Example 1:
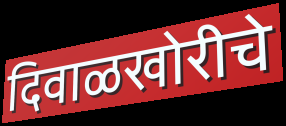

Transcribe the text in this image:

दिवाळखोरीचे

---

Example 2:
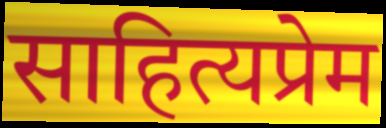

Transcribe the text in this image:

साहित्यप्रेम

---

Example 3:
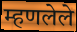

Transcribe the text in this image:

म्हणलेले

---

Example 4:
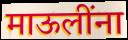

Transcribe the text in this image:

माऊलींना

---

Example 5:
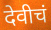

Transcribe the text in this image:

देवीचं